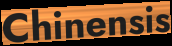
Chinensis